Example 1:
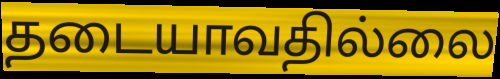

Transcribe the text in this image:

தடையாவதில்லை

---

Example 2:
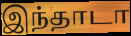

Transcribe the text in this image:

இந்தாடா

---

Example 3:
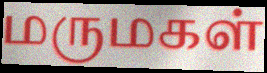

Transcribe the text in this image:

மருமகள்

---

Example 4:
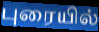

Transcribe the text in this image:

புரையில்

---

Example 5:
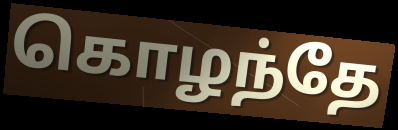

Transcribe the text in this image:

கொழந்தே